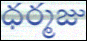
ధర్మజు